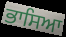
ਭਾਸਿਆ